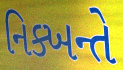
નિક્ખન્તે